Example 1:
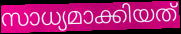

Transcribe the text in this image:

സാധ്യമാക്കിയത്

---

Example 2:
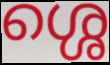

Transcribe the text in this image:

ശ്ശെ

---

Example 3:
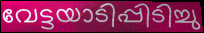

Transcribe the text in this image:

വേട്ടയാടിപ്പിടിച്ചു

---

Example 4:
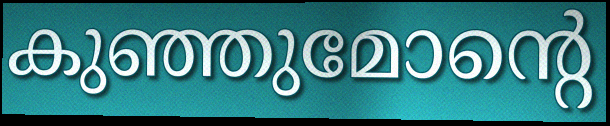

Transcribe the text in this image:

കുഞ്ഞുമോന്റെ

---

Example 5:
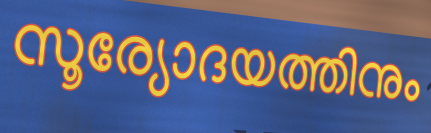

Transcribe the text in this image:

സൂര്യോദയത്തിനും